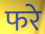
फरे